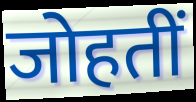
जोहतीं